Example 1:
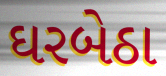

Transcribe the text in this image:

ઘરબેઠા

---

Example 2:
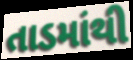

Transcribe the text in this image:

તાડમાંથી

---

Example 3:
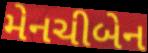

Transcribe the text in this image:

મેનચીબેન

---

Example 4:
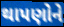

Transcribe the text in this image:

થાપણોને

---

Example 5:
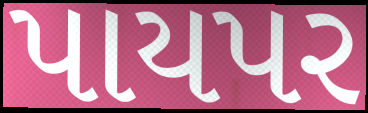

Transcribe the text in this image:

પાયપર